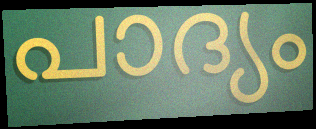
പാദ്യം